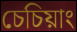
চেচিয়াং